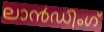
ലാൻഡിംഗ്